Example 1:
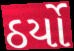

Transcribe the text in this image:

ઠર્યો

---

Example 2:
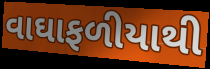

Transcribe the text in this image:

વાઘાફળીયાથી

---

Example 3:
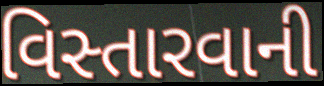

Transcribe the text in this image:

વિસ્તારવાની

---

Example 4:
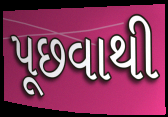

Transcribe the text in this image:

પૂછવાથી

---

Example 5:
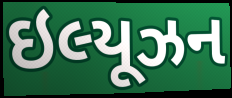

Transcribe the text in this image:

ઇલ્યૂઝન